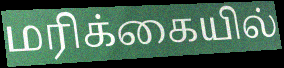
மரிக்கையில்